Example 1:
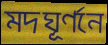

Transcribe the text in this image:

মদঘূর্ণনে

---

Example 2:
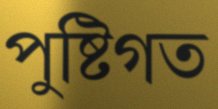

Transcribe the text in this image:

পুষ্টিগত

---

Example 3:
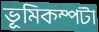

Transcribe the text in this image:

ভূমিকম্পটা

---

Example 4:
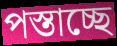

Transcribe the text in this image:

পস্তাচ্ছে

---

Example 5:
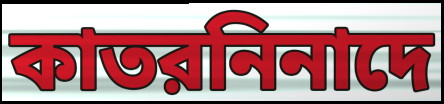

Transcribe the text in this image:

কাতরনিনাদে